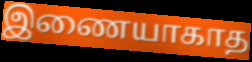
இணையாகாத